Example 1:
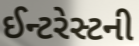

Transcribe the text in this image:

ઈન્ટરેસ્ટની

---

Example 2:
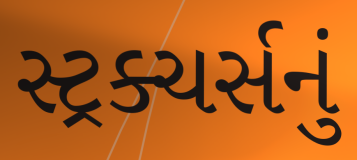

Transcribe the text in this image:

સ્ટ્રક્ચર્સનું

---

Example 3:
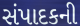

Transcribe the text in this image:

સંપાદકની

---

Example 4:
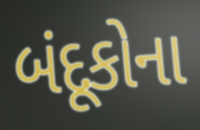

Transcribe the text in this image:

બંદૂકોના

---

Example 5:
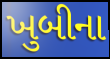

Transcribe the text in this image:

ખુબીના